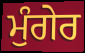
ਮੁੰਗੇਰ